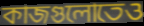
কাজগুলোতেও